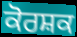
ਕੋਰਸ਼ਕ